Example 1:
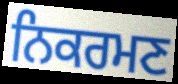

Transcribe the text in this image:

ਨਿਕਰਮਣ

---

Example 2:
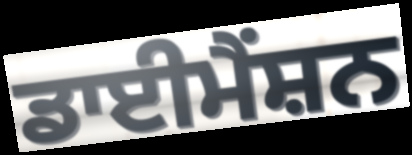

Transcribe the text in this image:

ਡਾਈਮੈਂਸ਼ਨ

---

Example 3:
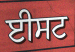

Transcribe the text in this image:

ਈਸਟ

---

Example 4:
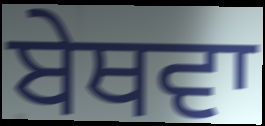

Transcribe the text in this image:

ਬੇਥਵਾ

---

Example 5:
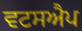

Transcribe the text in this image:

ਵਟਸਐਪ